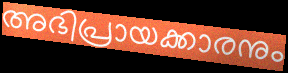
അഭിപ്രായക്കാരനും